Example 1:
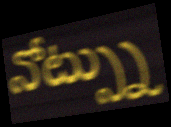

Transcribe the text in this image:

నోట్స్ను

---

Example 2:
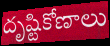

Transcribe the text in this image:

దృష్టికోణాలు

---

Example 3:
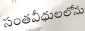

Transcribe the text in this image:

సంతవీధులలోను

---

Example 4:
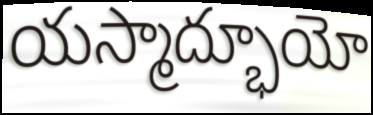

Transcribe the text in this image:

యస్మాద్భూయో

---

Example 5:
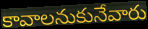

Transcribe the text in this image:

కావాలనుకునేవారు